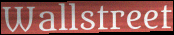
Wallstreet